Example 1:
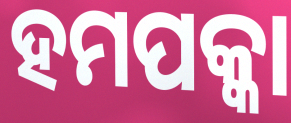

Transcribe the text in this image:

ହମପକ୍କା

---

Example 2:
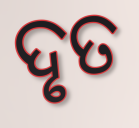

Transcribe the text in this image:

ଦୃତ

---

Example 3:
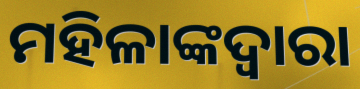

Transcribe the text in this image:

ମହିଳାଙ୍କଦ୍ୱାରା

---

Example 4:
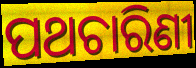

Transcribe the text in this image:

ପଥଚାରିଣୀ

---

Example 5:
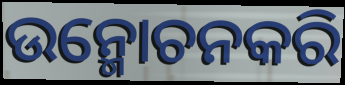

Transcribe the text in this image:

ଉନ୍ମୋଚନକରି